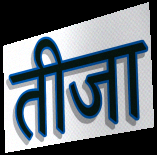
तीजा